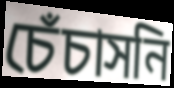
চেঁচাসনি